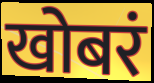
खोबरं